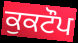
ਕੁਕਟੌਪ